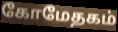
கோமேதகம்